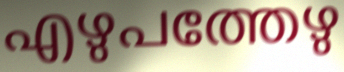
എഴുപത്തേഴു